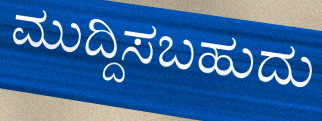
ಮುದ್ದಿಸಬಹುದು